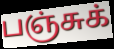
பஞ்சுக்